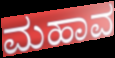
ಮಹಾವ